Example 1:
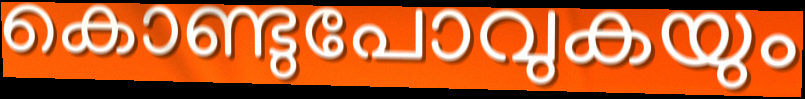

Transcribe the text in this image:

കൊണ്ടുപോവുകയും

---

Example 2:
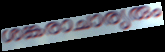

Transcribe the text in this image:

ശങ്കരാചാര്യരും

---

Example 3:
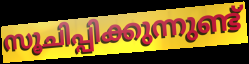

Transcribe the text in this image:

സൂചിപ്പിക്കുന്നുണ്ട്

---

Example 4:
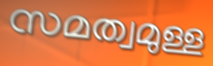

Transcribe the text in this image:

സമത്വമുള്ള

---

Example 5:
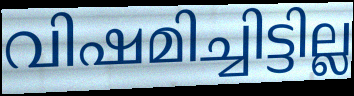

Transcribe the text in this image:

വിഷമിച്ചിട്ടില്ല